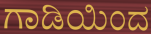
ಗಾಡಿಯಿಂದ